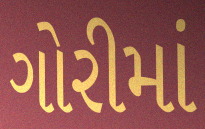
ગોરીમાં